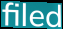
filed